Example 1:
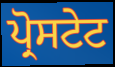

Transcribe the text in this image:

ਪ੍ਰੋਸਟੇਟ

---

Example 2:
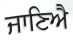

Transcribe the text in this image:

ਜਾਣਿਐ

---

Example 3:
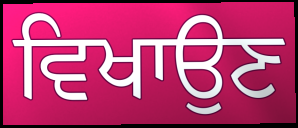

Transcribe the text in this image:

ਵਿਖਾਉਣ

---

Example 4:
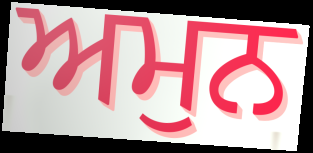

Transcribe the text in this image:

ਅਮੁਨ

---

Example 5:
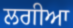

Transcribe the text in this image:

ਲਗੀਆ